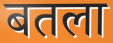
बतला